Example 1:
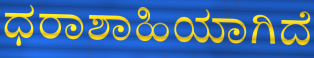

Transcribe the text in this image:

ಧರಾಶಾಹಿಯಾಗಿದೆ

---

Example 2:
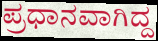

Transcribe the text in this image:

ಪ್ರಧಾನವಾಗಿದ್ದ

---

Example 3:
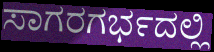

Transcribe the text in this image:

ಸಾಗರಗರ್ಭದಲ್ಲಿ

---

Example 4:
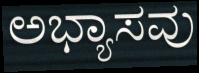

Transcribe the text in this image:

ಅಭ್ಯಾಸವು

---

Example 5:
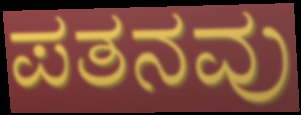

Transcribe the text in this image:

ಪತನವು